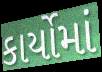
કાર્યોમાં